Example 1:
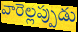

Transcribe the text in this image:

వారెల్లప్పుడు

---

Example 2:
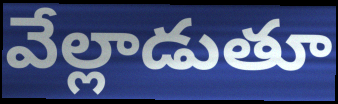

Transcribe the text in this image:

వేల్లాడుతూ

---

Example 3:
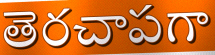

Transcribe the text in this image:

తెరచాపగా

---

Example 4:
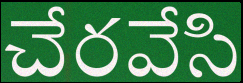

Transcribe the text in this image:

చేరవేసి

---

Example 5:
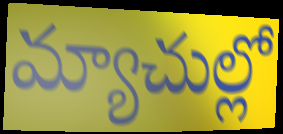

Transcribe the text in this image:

మ్యాచుల్లో